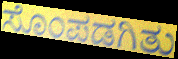
ಸೊಂಪಡಗಿತು